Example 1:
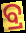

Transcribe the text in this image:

ବ୍ର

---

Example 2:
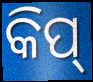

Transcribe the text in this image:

କିପ୍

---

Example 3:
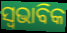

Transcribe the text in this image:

ସ୍ଵଭାବିକ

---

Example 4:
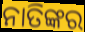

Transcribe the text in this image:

ନାତିଙ୍କର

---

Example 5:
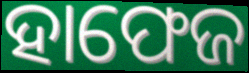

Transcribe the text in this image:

ହାଫେଜ